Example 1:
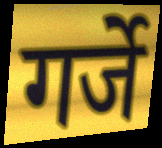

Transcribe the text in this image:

गर्जे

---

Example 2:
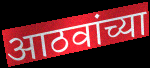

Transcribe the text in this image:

आठवांच्या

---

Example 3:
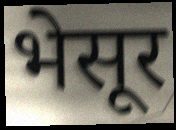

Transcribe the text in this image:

भेसूर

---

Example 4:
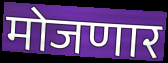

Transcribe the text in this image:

मोजणार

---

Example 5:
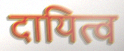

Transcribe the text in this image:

दायित्व